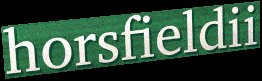
horsfieldii